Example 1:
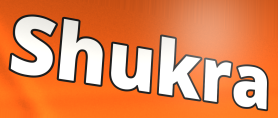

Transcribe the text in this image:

Shukra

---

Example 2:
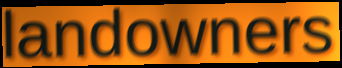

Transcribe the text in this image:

landowners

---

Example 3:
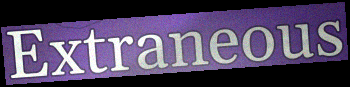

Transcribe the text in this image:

Extraneous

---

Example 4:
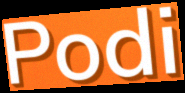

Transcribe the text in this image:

Podi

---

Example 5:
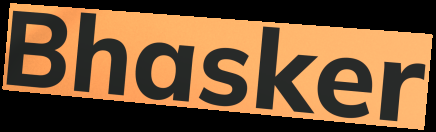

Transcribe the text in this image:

Bhasker